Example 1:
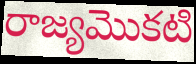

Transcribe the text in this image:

రాజ్యమొకటి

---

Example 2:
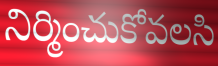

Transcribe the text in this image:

నిర్మించుకోవలసి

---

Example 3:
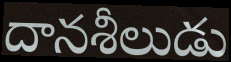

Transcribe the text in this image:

దానశీలుడు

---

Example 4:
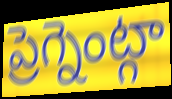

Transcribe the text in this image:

ప్రెగ్నెంట్గా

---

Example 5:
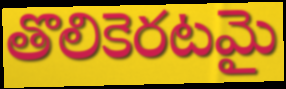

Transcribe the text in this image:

తొలికెరటమై